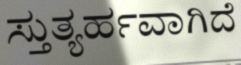
ಸ್ತುತ್ಯರ್ಹವಾಗಿದೆ